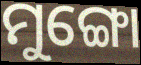
ମୁଙ୍ଗୋ